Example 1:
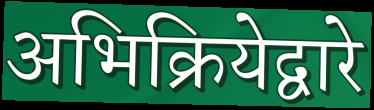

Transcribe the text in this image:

अभिक्रियेद्वारे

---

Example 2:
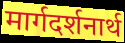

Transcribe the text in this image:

मार्गदर्शनार्थ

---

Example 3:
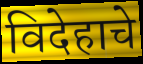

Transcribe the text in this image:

विदेहाचे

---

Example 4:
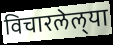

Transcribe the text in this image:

विचारलेल्या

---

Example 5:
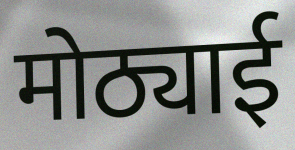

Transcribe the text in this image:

मोठ्याई